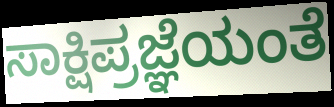
ಸಾಕ್ಷಿಪ್ರಜ್ಞೆಯಂತೆ